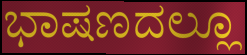
ಭಾಷಣದಲ್ಲೂ